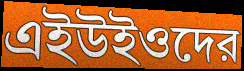
এইউইওদের